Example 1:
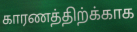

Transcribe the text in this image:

காரணத்திற்க்காக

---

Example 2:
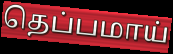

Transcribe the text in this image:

தெப்பமாய்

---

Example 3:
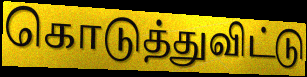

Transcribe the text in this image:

கொடுத்துவிட்டு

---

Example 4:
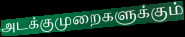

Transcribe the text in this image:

அடக்குமுறைகளுக்கும்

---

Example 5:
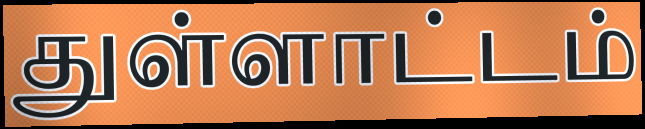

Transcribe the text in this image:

துள்ளாட்டம்